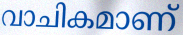
വാചികമാണ്